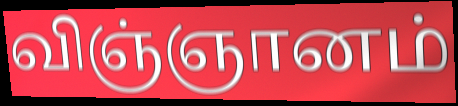
விஞ்ஞானம்